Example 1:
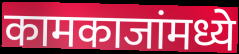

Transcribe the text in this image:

कामकाजांमध्ये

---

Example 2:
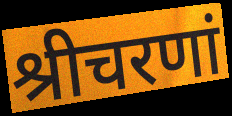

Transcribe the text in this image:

श्रीचरणां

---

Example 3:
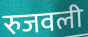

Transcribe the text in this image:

रुजवली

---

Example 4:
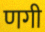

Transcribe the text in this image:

णगी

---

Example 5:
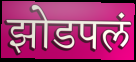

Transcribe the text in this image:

झोडपलं